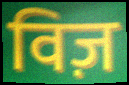
विज़